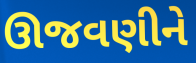
ઊજવણીને